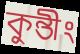
কুন্তীং